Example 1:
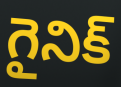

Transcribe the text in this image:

గైనిక్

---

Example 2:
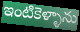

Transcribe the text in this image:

ఇంటికెళ్ళాను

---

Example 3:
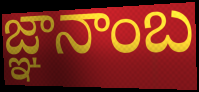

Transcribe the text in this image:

జ్ఞానాంబ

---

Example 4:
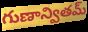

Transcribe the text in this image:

గుణాన్వితమ్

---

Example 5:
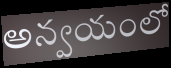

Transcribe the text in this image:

అన్వయంలో